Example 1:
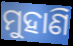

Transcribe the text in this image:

ମୁହାଣି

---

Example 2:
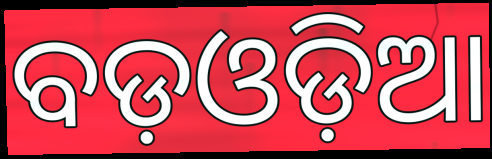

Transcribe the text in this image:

ବଡ଼ଓଡ଼ିଆ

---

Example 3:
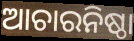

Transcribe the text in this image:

ଆଚାରନିଷ୍ଠା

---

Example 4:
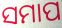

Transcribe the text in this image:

ସମାପ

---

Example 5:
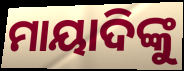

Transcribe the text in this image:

ମାୟାଦିଙ୍କୁ